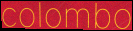
colombo